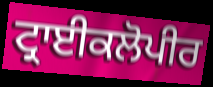
ਟ੍ਰਾਈਕਲੋਪੀਰ